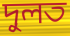
দুলত